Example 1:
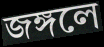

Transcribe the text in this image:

জঙ্গলে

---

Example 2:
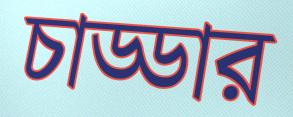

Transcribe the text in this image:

চাড্ডার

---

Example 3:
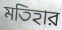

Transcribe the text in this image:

মতিহার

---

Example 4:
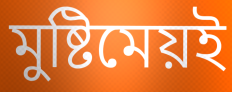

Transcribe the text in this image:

মুষ্টিমেয়ই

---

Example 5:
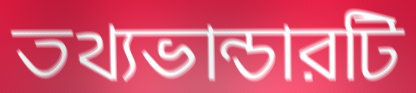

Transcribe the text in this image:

তথ্যভান্ডারটি